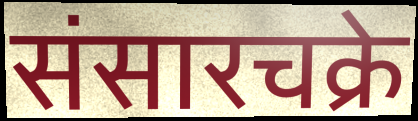
संसारचक्रे